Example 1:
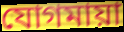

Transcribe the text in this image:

যোগমায়া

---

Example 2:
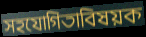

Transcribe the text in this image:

সহযোগিতাবিষয়ক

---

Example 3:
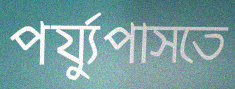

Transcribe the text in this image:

পর্য্যুপাসতে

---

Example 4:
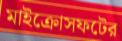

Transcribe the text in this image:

মাইক্রোসফটের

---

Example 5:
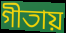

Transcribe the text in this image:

গীতায়